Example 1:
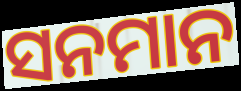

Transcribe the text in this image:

ସନମାନ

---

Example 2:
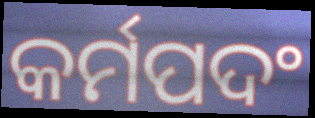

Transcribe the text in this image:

କର୍ମପଦଂ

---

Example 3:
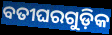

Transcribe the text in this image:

ବତୀଘରଗୁଡ଼ିକ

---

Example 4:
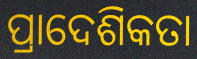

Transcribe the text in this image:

ପ୍ରାଦେଶିକତା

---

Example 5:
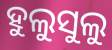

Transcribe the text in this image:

ହୁଲୁସୁଲୁ